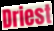
Driest